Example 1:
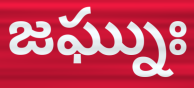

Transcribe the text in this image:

జఘ్నుః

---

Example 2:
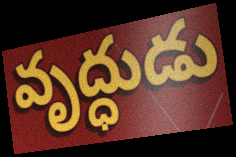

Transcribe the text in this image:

వృద్ధుడు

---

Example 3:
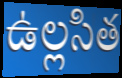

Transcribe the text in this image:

ఉల్లసిత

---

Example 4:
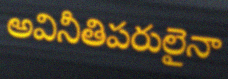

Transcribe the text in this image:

అవినీతిపరులైనా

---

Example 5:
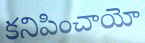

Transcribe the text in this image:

కనిపించాయో